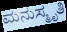
ಮನುಸ್ಮೃತಿ